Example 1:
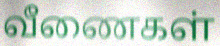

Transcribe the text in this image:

வீணைகள்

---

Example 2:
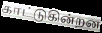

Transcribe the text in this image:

காட்டுகின்றன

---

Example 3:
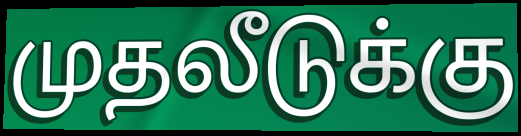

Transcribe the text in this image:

முதலீடுக்கு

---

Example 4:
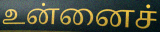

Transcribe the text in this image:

உன்னைச்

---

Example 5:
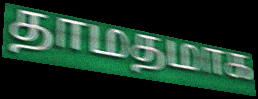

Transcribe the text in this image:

தாமதமாக